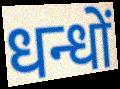
धन्धों